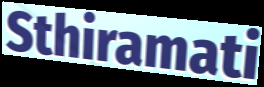
Sthiramati